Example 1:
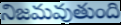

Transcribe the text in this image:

నిజమవుతుంది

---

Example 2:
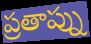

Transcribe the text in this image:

ప్రతాప్ను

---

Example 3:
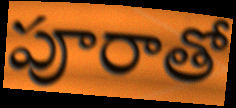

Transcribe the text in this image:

పూరాతో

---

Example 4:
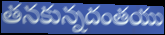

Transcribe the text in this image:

తనకున్నదంతయు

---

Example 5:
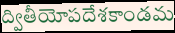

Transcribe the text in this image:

ద్వితీయోపదేశకాండమ